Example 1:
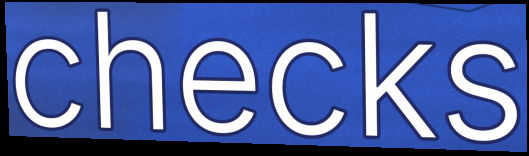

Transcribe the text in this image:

checks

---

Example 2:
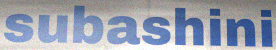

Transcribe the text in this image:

subashini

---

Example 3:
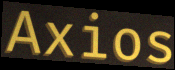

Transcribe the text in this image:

Axios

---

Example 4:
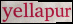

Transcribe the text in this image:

yellapur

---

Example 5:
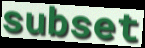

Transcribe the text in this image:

subset